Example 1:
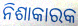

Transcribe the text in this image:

ନିଶାକାରକ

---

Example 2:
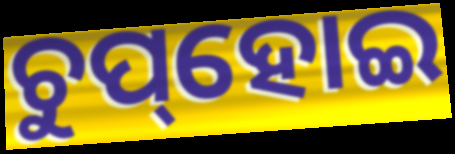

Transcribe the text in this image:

ଚୁପ୍‌ହୋଇ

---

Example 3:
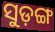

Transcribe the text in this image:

ସୁଡ଼ଙ୍ଗ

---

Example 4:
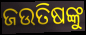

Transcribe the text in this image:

ଜଉତିଷଙ୍କୁ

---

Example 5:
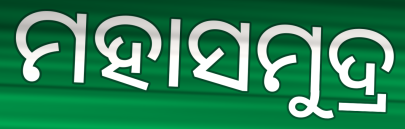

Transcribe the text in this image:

ମହାସମୁଦ୍ର